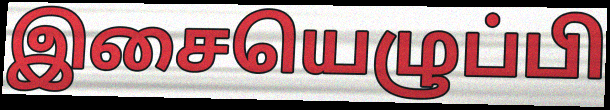
இசையெழுப்பி